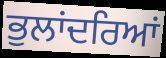
ਭੁਲਾਂਦਰਿਆਂ